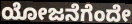
ಯೋಜನೆಗೆಂದೇ